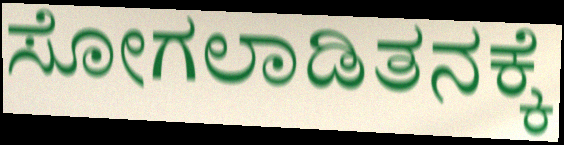
ಸೋಗಲಾಡಿತನಕ್ಕೆ